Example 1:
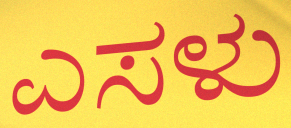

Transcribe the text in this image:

ಎಸಳು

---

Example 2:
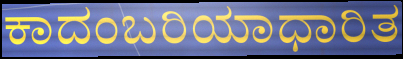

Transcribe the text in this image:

ಕಾದಂಬರಿಯಾಧಾರಿತ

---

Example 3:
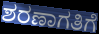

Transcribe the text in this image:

ಶರಣಾಗತಿಗೆ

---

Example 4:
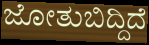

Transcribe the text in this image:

ಜೋತುಬಿದ್ದಿದೆ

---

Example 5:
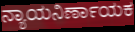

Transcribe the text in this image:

ನ್ಯಾಯನಿರ್ಣಾಯಕ